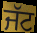
ਜੱਟ